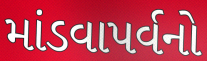
માંડવાપર્વનો